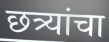
छत्र्यांचा